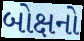
બોક્ષનો